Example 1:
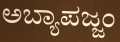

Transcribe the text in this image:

ಅಬ್ಯಾಪಜ್ಜಂ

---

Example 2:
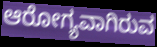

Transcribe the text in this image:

ಆರೋಗ್ಯವಾಗಿರುವ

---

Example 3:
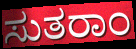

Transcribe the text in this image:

ಸುತರಾಂ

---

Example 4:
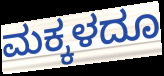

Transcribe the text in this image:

ಮಕ್ಕಳದೂ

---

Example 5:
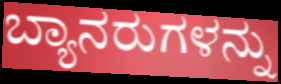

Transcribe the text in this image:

ಬ್ಯಾನರುಗಳನ್ನು